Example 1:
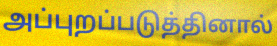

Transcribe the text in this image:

அப்புறப்படுத்தினால்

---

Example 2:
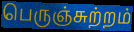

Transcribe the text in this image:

பெருஞ்சுற்றம்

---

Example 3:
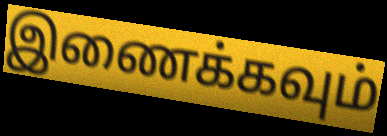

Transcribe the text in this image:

இணைக்கவும்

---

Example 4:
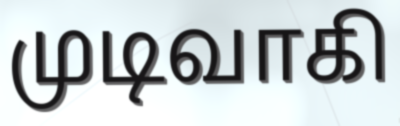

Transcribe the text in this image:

முடிவாகி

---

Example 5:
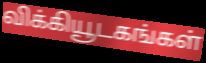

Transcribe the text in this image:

விக்கியூடகங்கள்